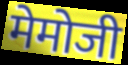
मेमोजी